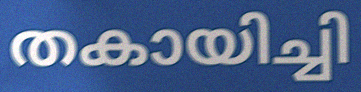
തകായിച്ചി